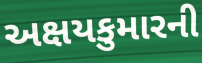
અક્ષયકુમારની